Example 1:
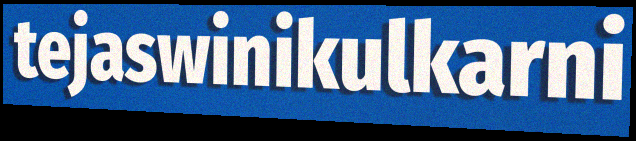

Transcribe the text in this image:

tejaswinikulkarni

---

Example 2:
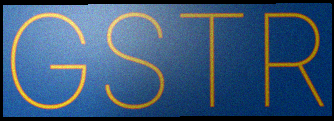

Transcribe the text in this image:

GSTR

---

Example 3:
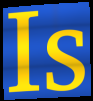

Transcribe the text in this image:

Is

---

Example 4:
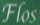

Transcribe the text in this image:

Flos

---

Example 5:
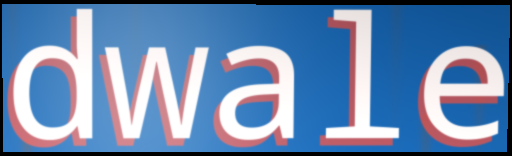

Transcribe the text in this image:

dwale